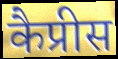
कैप्रीस